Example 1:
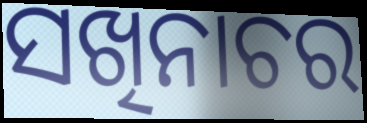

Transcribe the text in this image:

ସଖିନାଚର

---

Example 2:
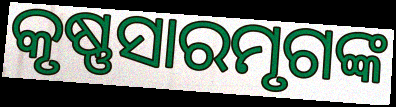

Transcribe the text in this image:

କୃଷ୍ଣସାରମୃଗଙ୍କ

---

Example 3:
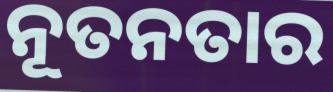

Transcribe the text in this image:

ନୂତନତାର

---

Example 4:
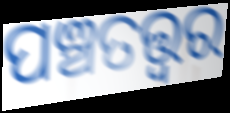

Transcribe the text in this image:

ପଞ୍ଚତତ୍ତ୍ୱର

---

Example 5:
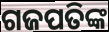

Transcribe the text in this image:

ଗଜପତିଙ୍କ